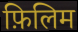
फ़िलिम